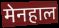
मेनहाल